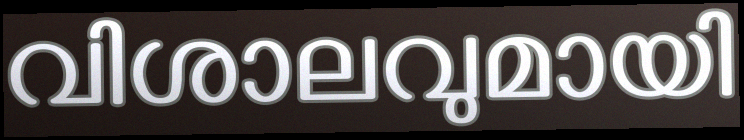
വിശാലവുമായി